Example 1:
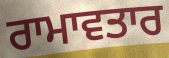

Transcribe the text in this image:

ਰਾਮਾਵਤਾਰ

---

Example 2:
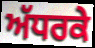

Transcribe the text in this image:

ਅੱਧਰਕੇ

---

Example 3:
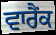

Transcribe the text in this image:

ਵਾਰੈਂਕ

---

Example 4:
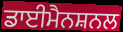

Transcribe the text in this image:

ਡਾਈਮੈਨਸ਼ਨਲ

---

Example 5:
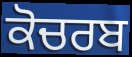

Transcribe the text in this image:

ਕੋਚਰਬ